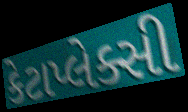
કેટાપ્લેક્સી